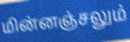
மின்னஞ்சலும்